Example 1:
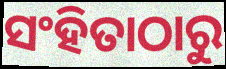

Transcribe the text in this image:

ସଂହିତାଠାରୁ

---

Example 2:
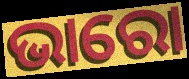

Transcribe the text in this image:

ଭାରୋ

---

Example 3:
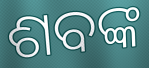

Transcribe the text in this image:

ଶବଙ୍କ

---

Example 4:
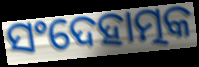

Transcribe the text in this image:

ସଂଦେହାତ୍ମକ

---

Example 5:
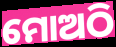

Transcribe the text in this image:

ମୋଅଠି